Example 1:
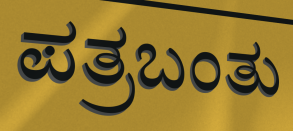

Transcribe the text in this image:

ಪತ್ರಬಂತು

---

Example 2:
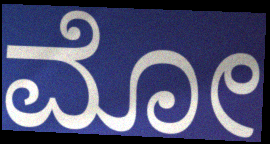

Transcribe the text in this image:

ಮೋ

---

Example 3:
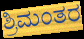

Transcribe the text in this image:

ಶ್ರಿಮಂತರ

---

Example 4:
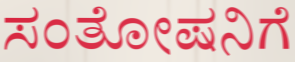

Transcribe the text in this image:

ಸಂತೋಷನಿಗೆ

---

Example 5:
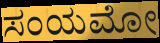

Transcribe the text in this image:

ಸಂಯಮೋ